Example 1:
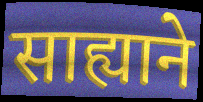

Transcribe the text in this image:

साह्याने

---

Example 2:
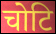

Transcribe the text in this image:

चोटि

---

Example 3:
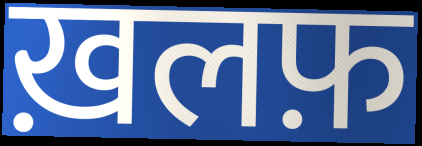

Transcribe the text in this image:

ख़लफ़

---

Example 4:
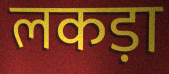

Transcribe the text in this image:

लकड़ा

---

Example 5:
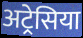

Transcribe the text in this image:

अट्रेसिया